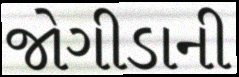
જોગીડાની